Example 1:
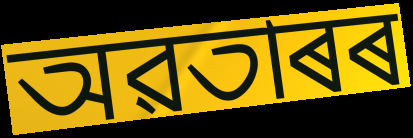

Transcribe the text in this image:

অৱতাৰৰ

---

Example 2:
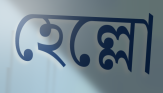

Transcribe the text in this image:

হেল্লো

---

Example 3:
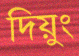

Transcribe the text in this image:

দিয়ুং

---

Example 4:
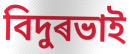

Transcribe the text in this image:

বিদুৰভাই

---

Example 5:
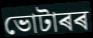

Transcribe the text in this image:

ভোটাৰৰ